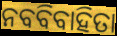
ନବବିବାହିତା